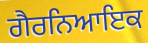
ਗੈਰਨਿਆਇਕ